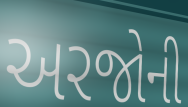
અરજોની